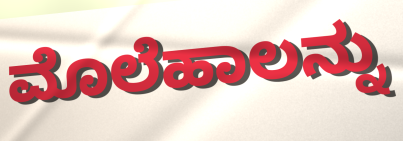
ಮೊಲೆಹಾಲನ್ನು